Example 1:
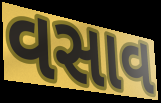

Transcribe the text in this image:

વસાવ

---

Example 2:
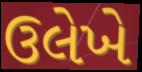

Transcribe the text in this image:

ઉલેખે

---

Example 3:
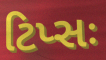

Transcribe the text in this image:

ટિપ્સઃ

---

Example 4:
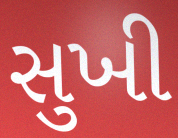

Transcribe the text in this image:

સુખી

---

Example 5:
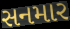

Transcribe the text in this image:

સનમાર